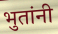
भुतांनी